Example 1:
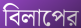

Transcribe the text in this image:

বিলাপের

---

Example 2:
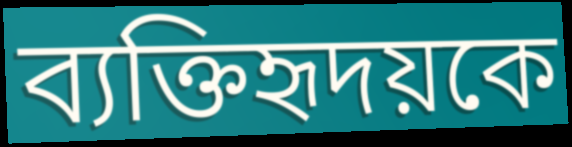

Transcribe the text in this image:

ব্যক্তিহৃদয়কে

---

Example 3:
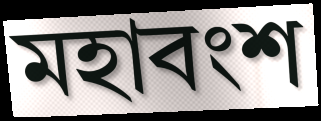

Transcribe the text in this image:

মহাবংশ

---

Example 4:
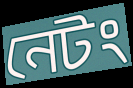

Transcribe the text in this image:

নেটং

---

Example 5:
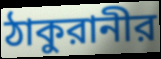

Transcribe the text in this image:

ঠাকুরানীর